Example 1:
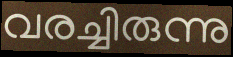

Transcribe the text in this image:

വരച്ചിരുന്നു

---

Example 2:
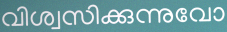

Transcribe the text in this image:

വിശ്വസിക്കുന്നുവോ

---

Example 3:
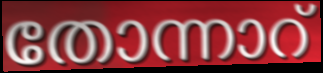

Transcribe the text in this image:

തോന്നാറ്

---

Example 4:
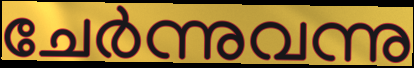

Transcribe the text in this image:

ചേർന്നുവന്നു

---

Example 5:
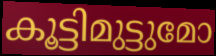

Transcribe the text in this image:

കൂട്ടിമുട്ടുമോ